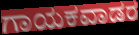
ಗಾಯಕವಾಡರ